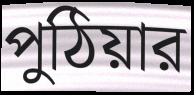
পুঠিয়ার